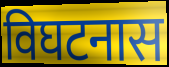
विघटनास